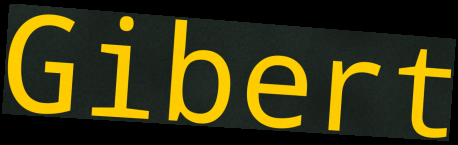
Gibert